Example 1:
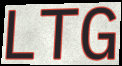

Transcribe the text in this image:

LTG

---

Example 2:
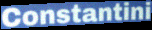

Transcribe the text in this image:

Constantini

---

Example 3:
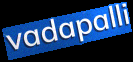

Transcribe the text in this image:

vadapalli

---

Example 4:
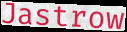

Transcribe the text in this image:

Jastrow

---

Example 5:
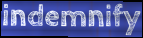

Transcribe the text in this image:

indemnify